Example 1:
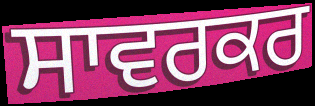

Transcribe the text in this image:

ਸਾਵਰਕਰ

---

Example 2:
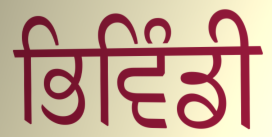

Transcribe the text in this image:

ਭਿਵਿੰਡੀ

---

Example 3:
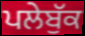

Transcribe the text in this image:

ਪਲੇਬੁੱਕ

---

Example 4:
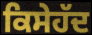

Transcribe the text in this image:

ਕਿਸੇਹੱਦ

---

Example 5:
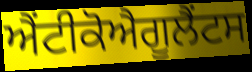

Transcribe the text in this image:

ਐਂਟੀਕੋਐਗੂਲੈਂਟਸ